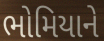
ભોમિયાને